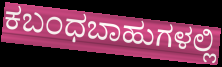
ಕಬಂಧಬಾಹುಗಳಲ್ಲಿ